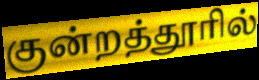
குன்றத்தூரில்